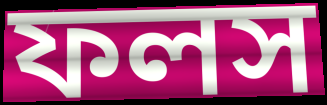
ফলস